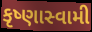
કૃષ્ણાસ્વામી